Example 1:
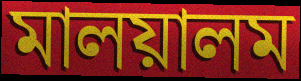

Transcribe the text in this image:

মালয়ালম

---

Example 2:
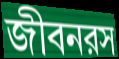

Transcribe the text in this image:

জীবনরস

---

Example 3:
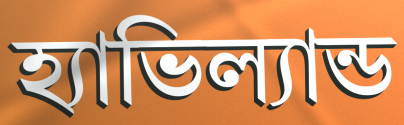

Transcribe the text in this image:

হ্যাভিল্যান্ড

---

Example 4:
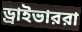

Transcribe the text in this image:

ড্রাইভাররা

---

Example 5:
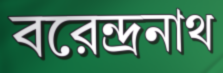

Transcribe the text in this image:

বরেন্দ্রনাথ